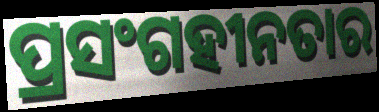
ପ୍ରସଂଗହୀନତାର